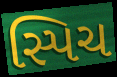
સ્પિચ